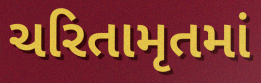
ચરિતામૃતમાં